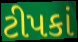
ટીપકાં